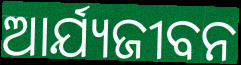
ଆର୍ଯ୍ୟଜୀବନ